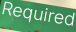
Required